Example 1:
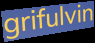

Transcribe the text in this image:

grifulvin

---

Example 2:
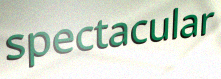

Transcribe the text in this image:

spectacular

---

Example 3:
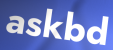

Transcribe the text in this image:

askbd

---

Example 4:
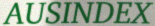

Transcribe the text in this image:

AUSINDEX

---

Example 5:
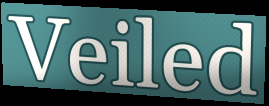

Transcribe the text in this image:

Veiled